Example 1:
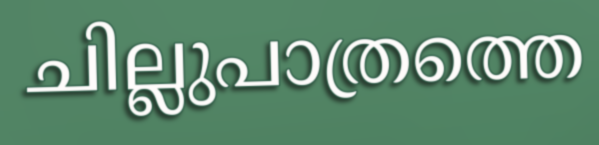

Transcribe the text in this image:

ചില്ലുപാത്രത്തെ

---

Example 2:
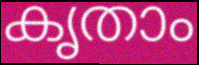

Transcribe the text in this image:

കൃതാം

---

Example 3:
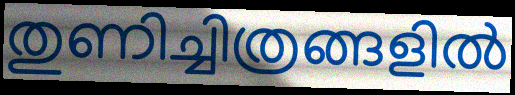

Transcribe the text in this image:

തുണിച്ചിത്രങ്ങളിൽ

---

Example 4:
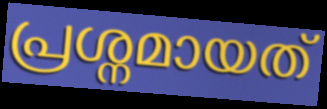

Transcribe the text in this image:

പ്രശ്നമായത്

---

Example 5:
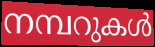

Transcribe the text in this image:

നമ്പറുകൾ